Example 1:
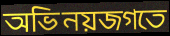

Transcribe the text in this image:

অভিনয়জগতে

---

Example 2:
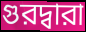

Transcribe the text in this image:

গুরদ্বারা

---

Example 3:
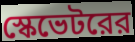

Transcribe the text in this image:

স্কেভেটরের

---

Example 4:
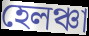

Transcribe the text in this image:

হেলঞ্চা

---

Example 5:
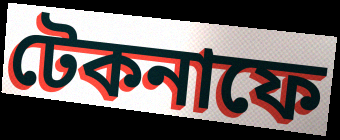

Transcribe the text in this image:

টেকনাফে